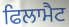
ਫਿਲਾਮੈਟ